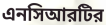
এনসিআরটির